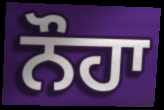
ਨੌਹਾ